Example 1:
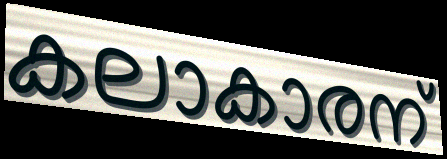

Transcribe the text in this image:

കലാകാരന്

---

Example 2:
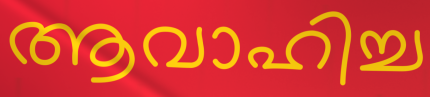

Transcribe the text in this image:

ആവാഹിച്ച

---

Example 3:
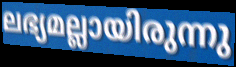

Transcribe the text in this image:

ലഭ്യമല്ലായിരുന്നു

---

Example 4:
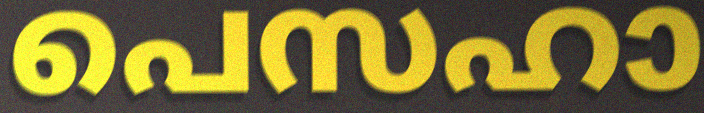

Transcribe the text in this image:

പെസഹാ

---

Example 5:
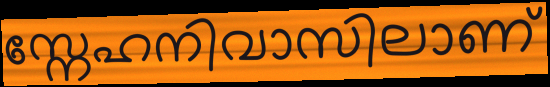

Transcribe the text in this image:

സ്നേഹനിവാസിലാണ്